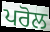
ਪਰੋਲ